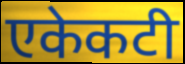
एकेकटी